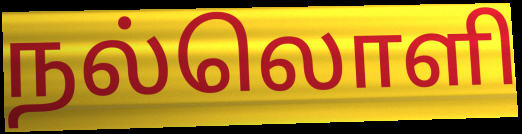
நல்லொளி